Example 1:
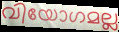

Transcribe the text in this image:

വിയോഗമല്ല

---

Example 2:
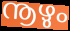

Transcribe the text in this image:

നൂഴും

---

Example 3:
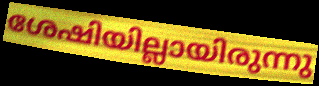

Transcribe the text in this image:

ശേഷിയില്ലായിരുന്നു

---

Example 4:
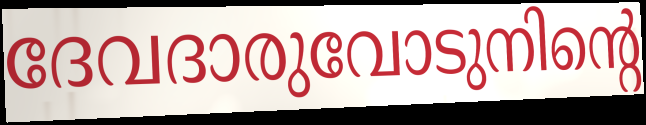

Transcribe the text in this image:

ദേവദാരുവോടുനിന്റെ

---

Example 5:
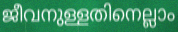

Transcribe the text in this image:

ജീവനുള്ളതിനെല്ലാം